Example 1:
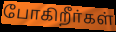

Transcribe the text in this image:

போகிறீர்கள்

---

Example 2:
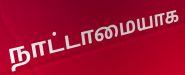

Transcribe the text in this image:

நாட்டாமையாக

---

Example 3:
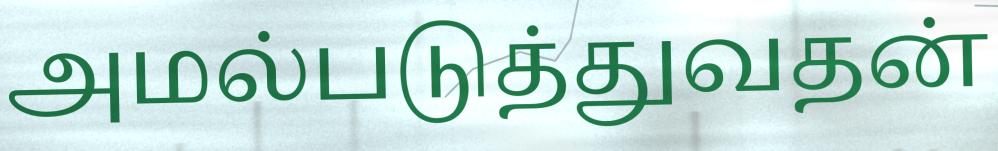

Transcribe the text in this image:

அமல்படுத்துவதன்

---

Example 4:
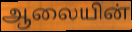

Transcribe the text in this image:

ஆலையின்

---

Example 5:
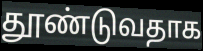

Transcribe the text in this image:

தூண்டுவதாக